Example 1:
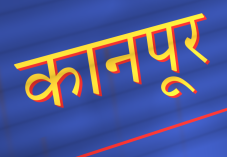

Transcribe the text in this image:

कानपूर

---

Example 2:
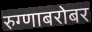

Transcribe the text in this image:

रुग्णाबरोबर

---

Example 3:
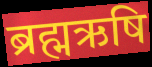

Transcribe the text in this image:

ब्रह्मऋषि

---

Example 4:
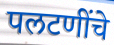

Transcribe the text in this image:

पलटणींचे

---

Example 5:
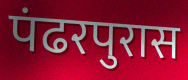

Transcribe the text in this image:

पंढरपुरास